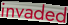
invaded